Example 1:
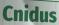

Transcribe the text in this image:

Cnidus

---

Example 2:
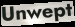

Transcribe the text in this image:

Unwept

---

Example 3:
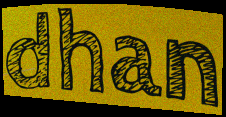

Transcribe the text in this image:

dhan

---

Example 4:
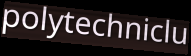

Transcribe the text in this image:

polytechniclu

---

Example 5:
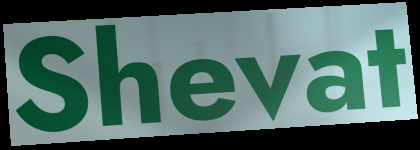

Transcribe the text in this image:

Shevat